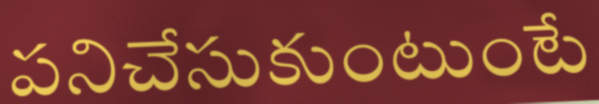
పనిచేసుకుంటుంటే